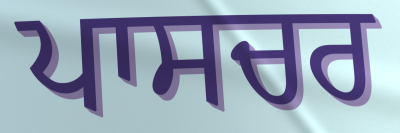
ਪਾਸਚਰ